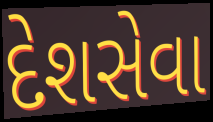
દેશસેવા